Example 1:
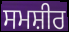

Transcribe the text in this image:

ਸਮਸ਼ੀਰ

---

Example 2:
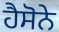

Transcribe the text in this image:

ਹੈਸੋਨੇ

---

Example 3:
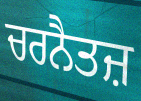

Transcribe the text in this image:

ਚਰਨੈਤਜ਼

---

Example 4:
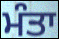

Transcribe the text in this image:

ਮੰਤਾ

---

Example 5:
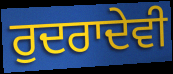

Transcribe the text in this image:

ਰੁਦਰਾਦੇਵੀ